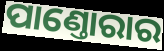
ପାଣ୍ତୋରାର